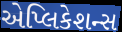
એપ્લિકેશન્સ